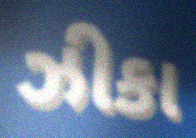
ઝીકા